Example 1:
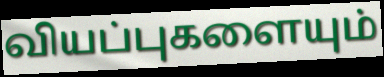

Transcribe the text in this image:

வியப்புகளையும்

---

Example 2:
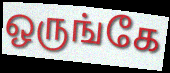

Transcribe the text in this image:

ஒருங்கே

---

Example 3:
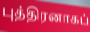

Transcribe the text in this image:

புத்திரனாகப்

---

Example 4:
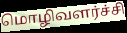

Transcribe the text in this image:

மொழிவளர்ச்சி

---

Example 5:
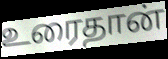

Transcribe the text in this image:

உரைதான்